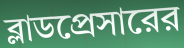
ব্লাডপ্রেসারের